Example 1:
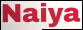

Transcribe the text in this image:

Naiya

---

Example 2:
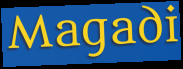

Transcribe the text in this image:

Magadi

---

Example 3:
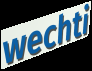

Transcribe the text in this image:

wechti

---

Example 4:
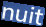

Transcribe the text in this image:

nuit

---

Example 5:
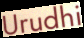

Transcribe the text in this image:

Urudhi